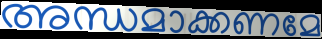
അന്ധമാക്കണമേ